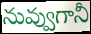
నువ్వుగానీ